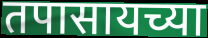
तपासायच्या